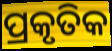
ପ୍ରକୃତିକ